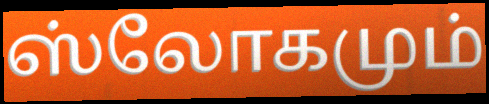
ஸ்லோகமும்